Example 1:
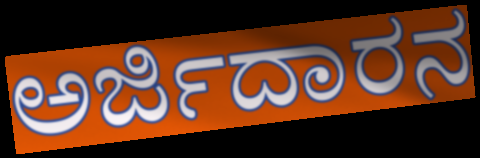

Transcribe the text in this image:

ಅರ್ಜಿದಾರನ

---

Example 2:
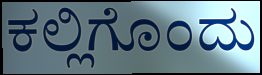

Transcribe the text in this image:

ಕಲ್ಲಿಗೊಂದು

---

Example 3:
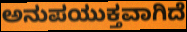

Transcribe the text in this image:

ಅನುಪಯುಕ್ತವಾಗಿದೆ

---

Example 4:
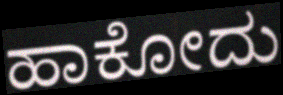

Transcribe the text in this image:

ಹಾಕೋದು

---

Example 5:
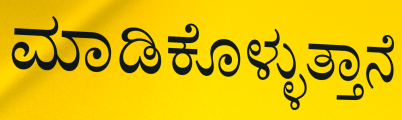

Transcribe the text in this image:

ಮಾಡಿಕೊಳ್ಳುತ್ತಾನೆ